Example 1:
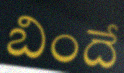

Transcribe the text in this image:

బిందే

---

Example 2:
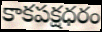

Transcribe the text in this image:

కాకపక్షధరం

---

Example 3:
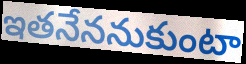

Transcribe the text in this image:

ఇతనేననుకుంటా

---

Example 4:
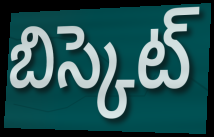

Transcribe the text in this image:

బిస్కెట్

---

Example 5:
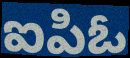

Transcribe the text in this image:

ఐపిఓ